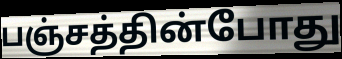
பஞ்சத்தின்போது